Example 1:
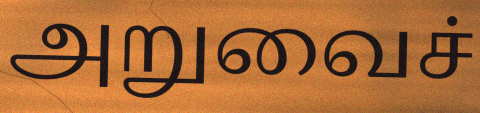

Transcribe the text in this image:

அறுவைச்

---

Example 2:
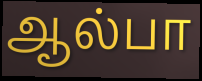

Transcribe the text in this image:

ஆல்பா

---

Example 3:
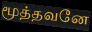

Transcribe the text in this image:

மூத்தவனே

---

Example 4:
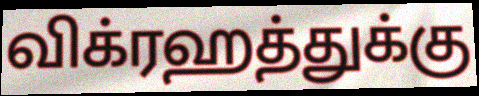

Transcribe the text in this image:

விக்ரஹத்துக்கு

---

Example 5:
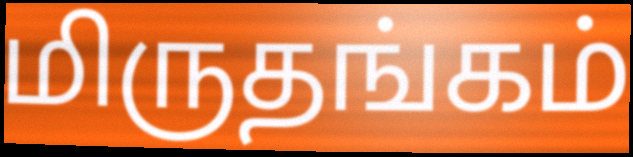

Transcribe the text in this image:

மிருதங்கம்